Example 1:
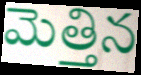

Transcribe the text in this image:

మెత్తిన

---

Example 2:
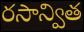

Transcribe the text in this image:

రసాన్విత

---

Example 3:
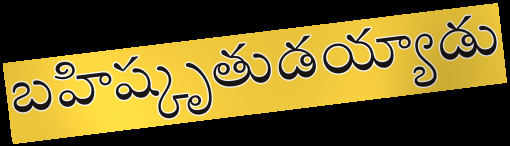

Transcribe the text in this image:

బహిష్కృతుడయ్యాడు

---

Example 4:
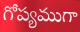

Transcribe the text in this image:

గోప్యముగా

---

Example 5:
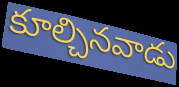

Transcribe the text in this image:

కూల్చినవాడు